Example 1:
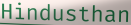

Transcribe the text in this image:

Hindusthan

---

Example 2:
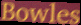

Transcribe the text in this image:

Bowles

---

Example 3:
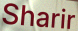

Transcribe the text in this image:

Sharir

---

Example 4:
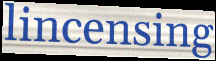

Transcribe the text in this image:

lincensing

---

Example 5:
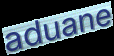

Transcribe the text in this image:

aduane